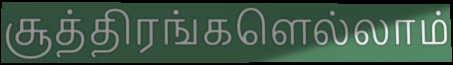
சூத்திரங்களெல்லாம்